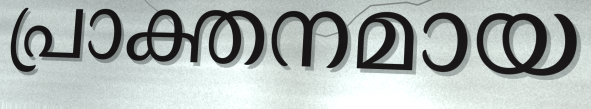
പ്രാക്തനമായ